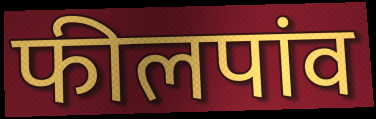
फीलपांव